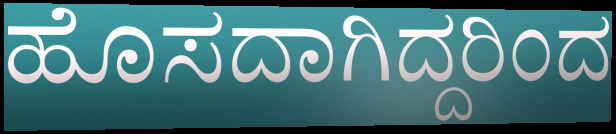
ಹೊಸದಾಗಿದ್ದರಿಂದ